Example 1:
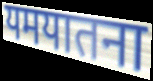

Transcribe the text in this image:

यमयातना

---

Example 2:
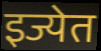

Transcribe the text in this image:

इज्येत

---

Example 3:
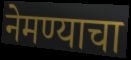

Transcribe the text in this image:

नेमण्याचा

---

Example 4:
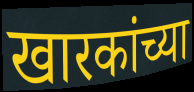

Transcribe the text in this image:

खारकांच्या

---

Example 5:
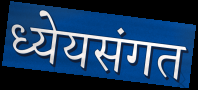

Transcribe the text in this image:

ध्येयसंगत